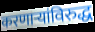
करणाऱ्यांविरुद्ध